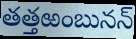
తత్తఱంబునన్